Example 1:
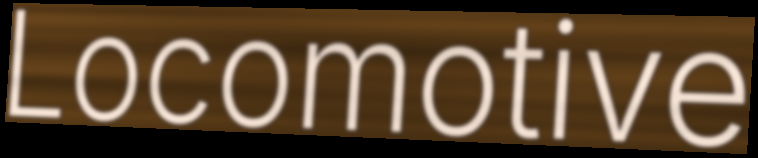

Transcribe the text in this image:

Locomotive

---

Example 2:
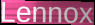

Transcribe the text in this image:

Lennox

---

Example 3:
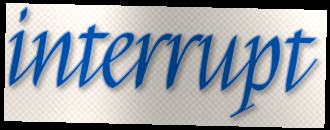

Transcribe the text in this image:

interrupt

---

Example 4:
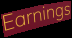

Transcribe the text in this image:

Earnings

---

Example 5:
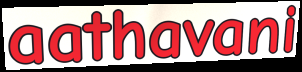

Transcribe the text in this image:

aathavani